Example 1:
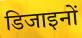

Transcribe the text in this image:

डिजाइनों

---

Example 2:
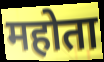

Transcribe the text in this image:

महोता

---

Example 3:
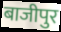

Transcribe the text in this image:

बाजीपुर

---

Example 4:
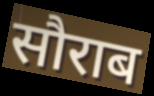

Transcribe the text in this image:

सौराब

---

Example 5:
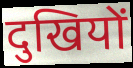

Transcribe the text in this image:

दुखियों